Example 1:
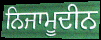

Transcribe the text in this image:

ਨਿਜਾਮੂਦੀਨ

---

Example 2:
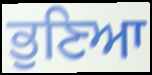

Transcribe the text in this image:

ਭੁਣਿਆ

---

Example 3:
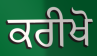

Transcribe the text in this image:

ਕਰੀਖੋ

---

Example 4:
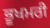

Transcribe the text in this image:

ਭੂਖਮਰੀ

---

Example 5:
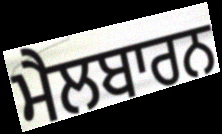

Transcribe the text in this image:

ਮੈਲਬਾਰਨ